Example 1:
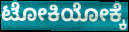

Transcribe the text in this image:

ಟೋಕಿಯೋಕ್ಕೆ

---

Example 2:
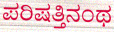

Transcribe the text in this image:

ಪರಿಷತ್ತಿನಂಥ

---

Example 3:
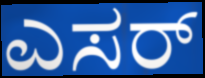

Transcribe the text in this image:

ಎಸರ್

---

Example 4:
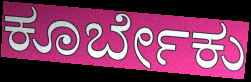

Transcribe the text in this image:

ಕೂರ್ಬೇಕು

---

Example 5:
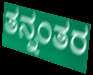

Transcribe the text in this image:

ತನ್ನಂತರ